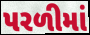
પરળીમાં